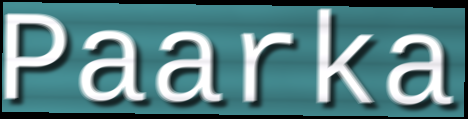
Paarka